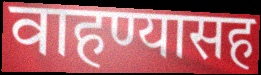
वाहण्यासह